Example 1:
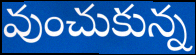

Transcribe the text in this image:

వుంచుకున్న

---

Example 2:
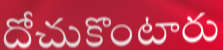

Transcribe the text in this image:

దోచుకొంటారు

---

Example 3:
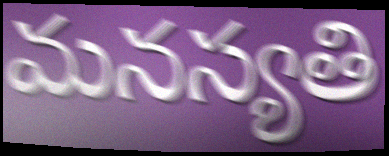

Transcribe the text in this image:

మనస్యతి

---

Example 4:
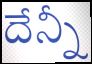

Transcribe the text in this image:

దేన్నీ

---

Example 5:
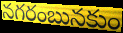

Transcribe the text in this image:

నగరంబునకుం